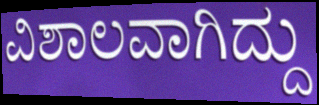
ವಿಶಾಲವಾಗಿದ್ದು